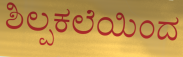
ಶಿಲ್ಪಕಲೆಯಿಂದ